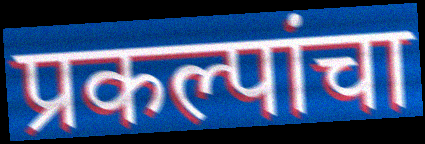
प्रकल्पांचा